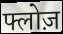
फ्लोज़